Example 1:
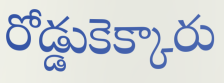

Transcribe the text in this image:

రోడ్డుకెక్కారు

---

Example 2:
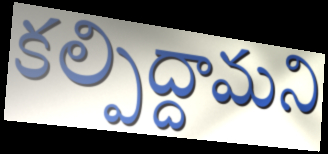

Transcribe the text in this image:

కల్పిద్దామని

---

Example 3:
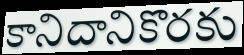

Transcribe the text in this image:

కానిదానికొరకు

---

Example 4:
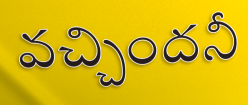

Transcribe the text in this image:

వచ్చిందనీ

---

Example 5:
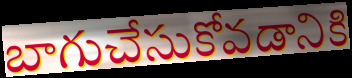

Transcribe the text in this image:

బాగుచేసుకోవడానికి